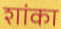
शांका